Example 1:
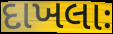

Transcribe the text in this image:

દાખલાઃ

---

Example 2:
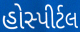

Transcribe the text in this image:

હોસ્પીર્ટલ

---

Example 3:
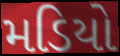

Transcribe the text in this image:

મડિયો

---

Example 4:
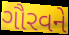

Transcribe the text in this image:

ગૌરવને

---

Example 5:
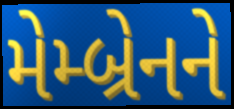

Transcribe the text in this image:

મેમ્બ્રેનને